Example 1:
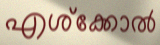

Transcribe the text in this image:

എശ്ക്കോൽ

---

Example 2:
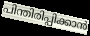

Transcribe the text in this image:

പിന്തിരിപ്പിക്കാൻ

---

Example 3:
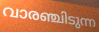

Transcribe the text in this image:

വാരഞ്ചിടുന്ന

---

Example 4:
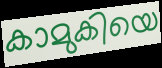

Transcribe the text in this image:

കാമുകിയെ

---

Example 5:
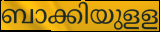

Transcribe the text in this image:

ബാക്കിയുളള